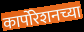
कार्पोरेशनच्या